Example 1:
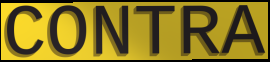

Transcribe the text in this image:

CONTRA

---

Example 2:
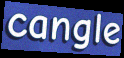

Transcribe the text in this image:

cangle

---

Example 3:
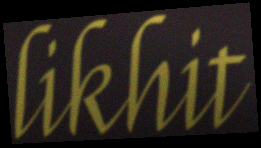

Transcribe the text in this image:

likhit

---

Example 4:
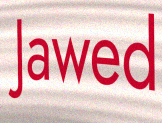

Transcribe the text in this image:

Jawed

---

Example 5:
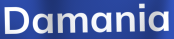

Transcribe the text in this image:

Damania